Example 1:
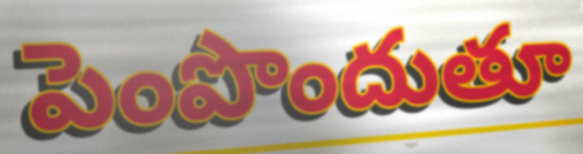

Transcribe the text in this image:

పెంపొందుతూ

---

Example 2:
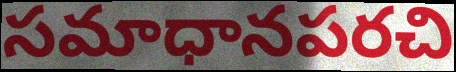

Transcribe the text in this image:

సమాధానపరచి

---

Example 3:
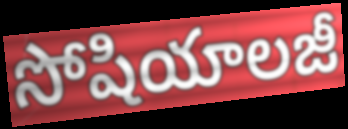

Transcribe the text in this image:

సోషియాలజీ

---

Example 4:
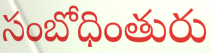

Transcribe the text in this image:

సంబోధింతురు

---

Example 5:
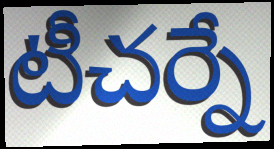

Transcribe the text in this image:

టీచర్నే